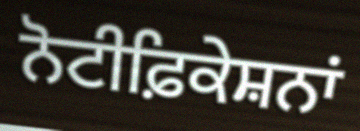
ਨੋਟੀਫ਼ਿਕੇਸ਼ਨਾਂ